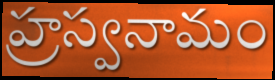
హ్రస్వనామం